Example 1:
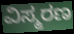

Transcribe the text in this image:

ವಿಸ್ಮರಣ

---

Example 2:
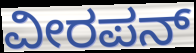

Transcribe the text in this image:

ವೀರಪನ್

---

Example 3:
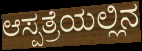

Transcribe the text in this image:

ಆಸ್ಪತ್ರೆಯಲ್ಲಿನ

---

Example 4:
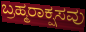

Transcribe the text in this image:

ಬ್ರಹ್ಮರಾಕ್ಷಸವು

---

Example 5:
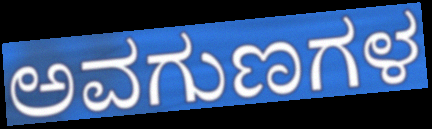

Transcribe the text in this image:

ಅವಗುಣಗಳ